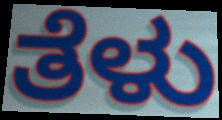
ತೆಳು